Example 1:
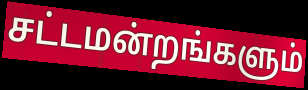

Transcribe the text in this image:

சட்டமன்றங்களும்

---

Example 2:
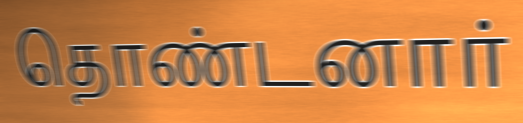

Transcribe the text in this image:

தொண்டனார்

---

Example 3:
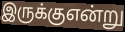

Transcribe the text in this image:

இருக்குஎன்று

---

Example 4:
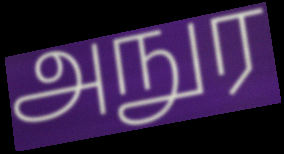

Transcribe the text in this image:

அநுர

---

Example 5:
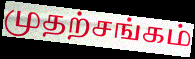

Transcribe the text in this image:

முதற்சங்கம்